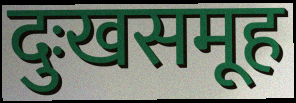
दुःखसमूह